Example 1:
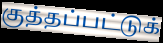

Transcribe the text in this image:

குத்தப்பட்டுக்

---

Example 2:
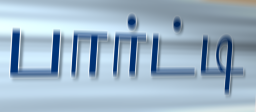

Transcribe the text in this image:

பார்ட்டி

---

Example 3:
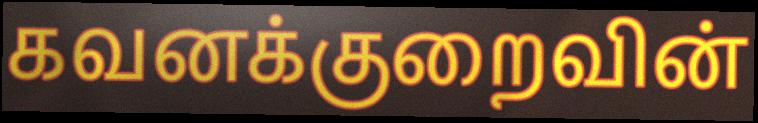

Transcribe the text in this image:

கவனக்குறைவின்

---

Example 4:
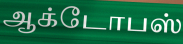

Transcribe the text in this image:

ஆக்டோபஸ்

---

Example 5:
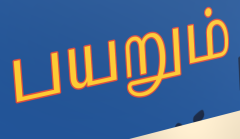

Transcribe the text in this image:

பயறும்